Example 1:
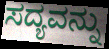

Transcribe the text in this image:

ಸದ್ಯವನ್ನು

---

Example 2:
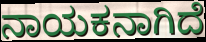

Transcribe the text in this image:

ನಾಯಕನಾಗಿದೆ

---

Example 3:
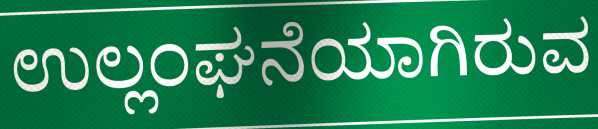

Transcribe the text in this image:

ಉಲ್ಲಂಘನೆಯಾಗಿರುವ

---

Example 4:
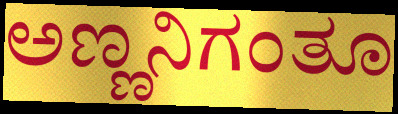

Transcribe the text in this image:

ಅಣ್ಣನಿಗಂತೂ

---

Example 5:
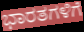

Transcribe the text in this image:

ಭಾರತಗಳಿಗೆ